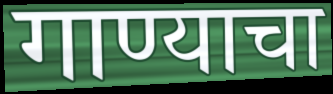
गाण्याचा